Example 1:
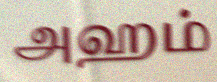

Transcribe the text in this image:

அஹம்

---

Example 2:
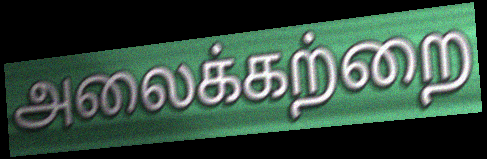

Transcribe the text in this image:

அலைக்கற்றை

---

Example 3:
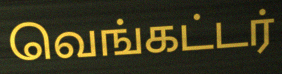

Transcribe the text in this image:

வெங்கட்டர்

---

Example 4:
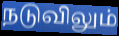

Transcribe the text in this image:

நடுவிலும்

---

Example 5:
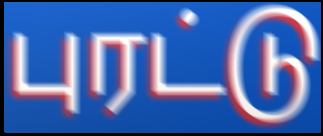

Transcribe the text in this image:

புரட்டு